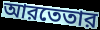
আরতেতার